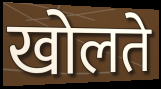
खोलते